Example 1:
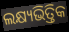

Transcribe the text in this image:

ଲକ୍ଷ୍ୟଭିତ୍ତିକ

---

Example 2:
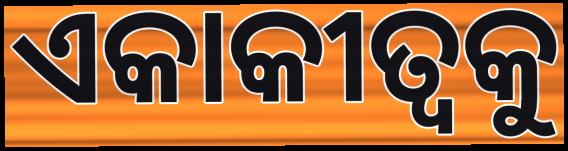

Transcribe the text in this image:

ଏକାକୀତ୍ଵକୁ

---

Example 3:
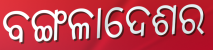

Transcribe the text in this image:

ବଙ୍ଗଳାଦେଶର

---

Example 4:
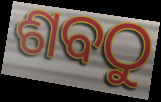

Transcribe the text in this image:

ଶବଠୁ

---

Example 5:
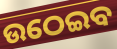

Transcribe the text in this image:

ଉଠେଇବ